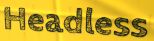
Headless